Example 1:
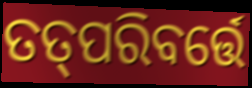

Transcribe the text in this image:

ତତ୍‌ପରିବର୍ତ୍ତେ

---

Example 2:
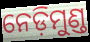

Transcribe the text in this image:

ନେଡ଼ିମୁଣ୍ଡ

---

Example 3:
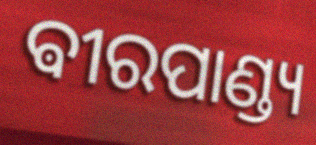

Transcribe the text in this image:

ଵୀରପାଣ୍ଡ୍ୟ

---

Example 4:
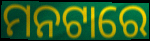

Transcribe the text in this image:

ମନଟାରେ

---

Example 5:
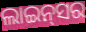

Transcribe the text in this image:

ଲାଇନ୍‍ସର